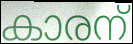
കാരന്